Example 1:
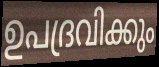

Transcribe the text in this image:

ഉപദ്രവിക്കും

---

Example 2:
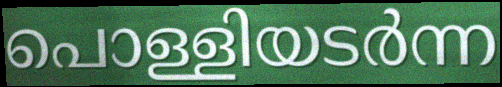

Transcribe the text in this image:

പൊള്ളിയടർന്ന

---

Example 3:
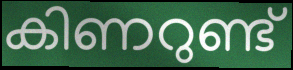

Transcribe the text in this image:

കിണറുണ്ട്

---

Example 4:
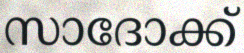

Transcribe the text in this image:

സാദോക്ക്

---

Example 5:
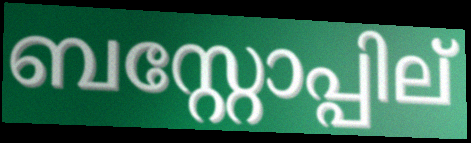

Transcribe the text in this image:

ബസ്റ്റോപ്പില്